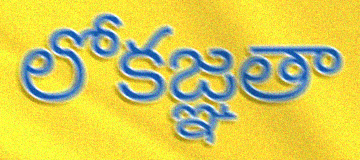
లోకజ్ఞతా